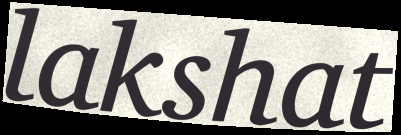
lakshat